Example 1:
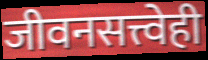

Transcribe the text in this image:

जीवनसत्त्वेही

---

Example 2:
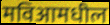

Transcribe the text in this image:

मविआमधील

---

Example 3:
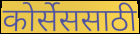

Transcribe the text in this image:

कोर्सेससाठी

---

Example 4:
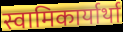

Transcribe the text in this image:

स्वामिकार्यार्था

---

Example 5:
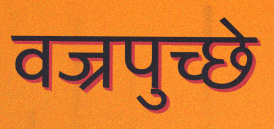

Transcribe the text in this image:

वज्रपुच्छे